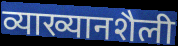
व्याख्यानशैली